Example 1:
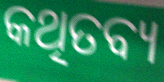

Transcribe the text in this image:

କଥିତବ୍ୟ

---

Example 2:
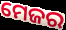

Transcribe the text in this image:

ମେଜର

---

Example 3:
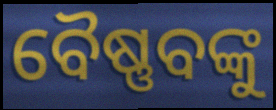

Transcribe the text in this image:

ବୈଷ୍ଣବଙ୍କୁ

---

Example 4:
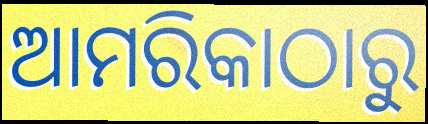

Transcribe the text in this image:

ଆମରିକାଠାରୁ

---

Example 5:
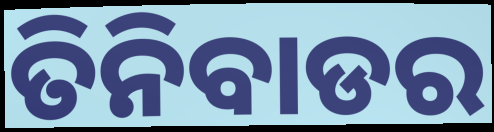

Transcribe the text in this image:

ତିନିବାଡର